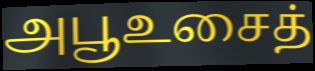
அபூஉசைத்